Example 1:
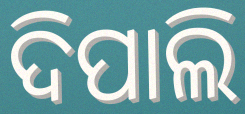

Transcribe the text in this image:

ଦିପାଲି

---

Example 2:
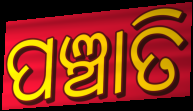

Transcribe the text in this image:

ପଞ୍ଚାତି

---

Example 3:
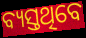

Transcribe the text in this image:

ବ୍ୟସ୍ତଥିବେ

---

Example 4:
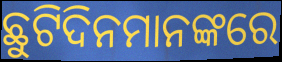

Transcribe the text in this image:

ଛୁଟିଦିନମାନଙ୍କରେ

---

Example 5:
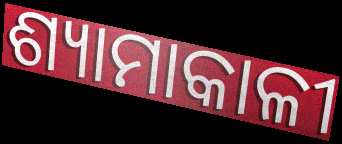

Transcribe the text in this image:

ଶ୍ୟାମାକାଳୀ